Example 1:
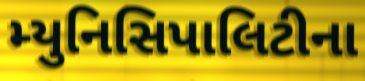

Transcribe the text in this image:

મ્યુનિસિપાલિટીના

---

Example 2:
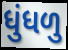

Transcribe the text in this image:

ધુંધળુ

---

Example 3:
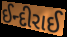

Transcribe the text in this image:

ઈન્દીરાઈ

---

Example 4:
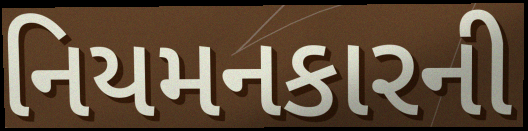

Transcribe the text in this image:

નિયમનકારની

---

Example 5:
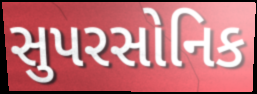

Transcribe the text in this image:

સુપરસોનિક